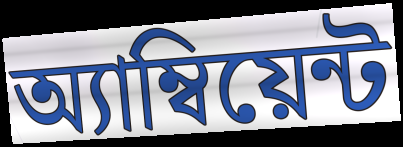
অ্যাম্বিয়েন্ট